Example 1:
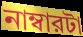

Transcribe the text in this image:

নাম্বারটা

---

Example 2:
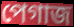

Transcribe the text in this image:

পেগাজ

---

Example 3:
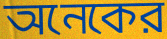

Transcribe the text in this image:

অনেকের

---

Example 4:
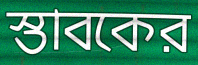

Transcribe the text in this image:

স্তাবকের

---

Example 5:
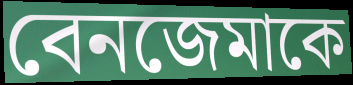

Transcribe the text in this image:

বেনজেমাকে